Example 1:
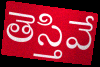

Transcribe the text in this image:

తెస్తివే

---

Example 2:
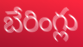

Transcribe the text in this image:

బేరింగ్లు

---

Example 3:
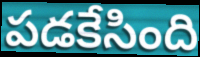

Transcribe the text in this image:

పడకేసింది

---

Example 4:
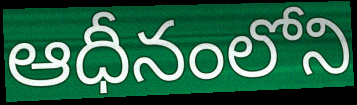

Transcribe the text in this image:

ఆధీనంలోని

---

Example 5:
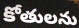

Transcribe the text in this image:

కోతులను